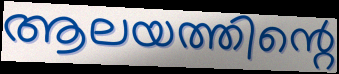
ആലയത്തിന്റെ